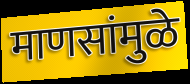
माणसांमुळे